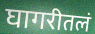
घागरीतलं